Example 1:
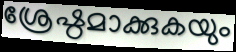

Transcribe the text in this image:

ശ്രേഷ്ഠമാക്കുകയും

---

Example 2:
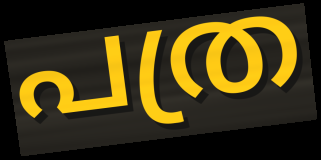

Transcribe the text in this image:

പത്ര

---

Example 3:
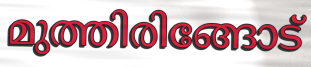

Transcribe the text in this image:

മുത്തിരിങ്ങോട്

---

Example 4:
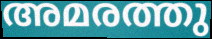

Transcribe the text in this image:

അമരത്തു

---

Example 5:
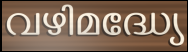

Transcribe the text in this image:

വഴിമദ്ധ്യേ